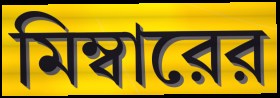
মিম্বারের